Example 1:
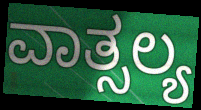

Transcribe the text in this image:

ವಾತ್ಸಲ್ಯ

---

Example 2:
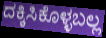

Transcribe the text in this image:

ದಕ್ಕಿಸಿಕೊಳ್ಳಬಲ್ಲ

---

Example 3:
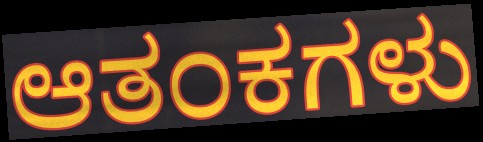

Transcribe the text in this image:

ಆತಂಕಗಳು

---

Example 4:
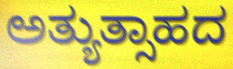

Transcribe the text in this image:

ಅತ್ಯುತ್ಸಾಹದ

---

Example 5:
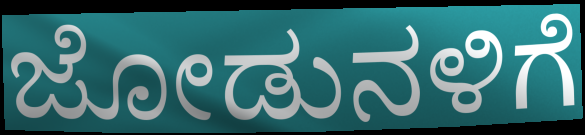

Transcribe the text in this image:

ಜೋಡುನಳಿಗೆ